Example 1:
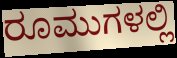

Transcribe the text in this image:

ರೂಮುಗಳಲ್ಲಿ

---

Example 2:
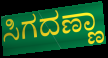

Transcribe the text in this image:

ಸಿಗದಣ್ಣಾ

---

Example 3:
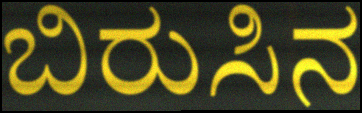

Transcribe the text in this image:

ಬಿರುಸಿನ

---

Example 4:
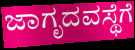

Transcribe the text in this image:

ಜಾಗೃದವಸ್ಥೆಗೆ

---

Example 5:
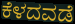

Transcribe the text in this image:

ಕೆಳದವಡೆ